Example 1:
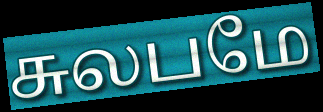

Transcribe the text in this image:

சுலபமே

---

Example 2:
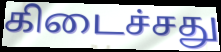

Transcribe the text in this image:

கிடைச்சது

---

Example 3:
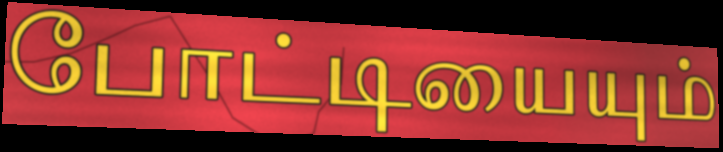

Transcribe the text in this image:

போட்டியையும்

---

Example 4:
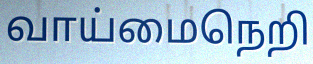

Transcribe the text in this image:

வாய்மைநெறி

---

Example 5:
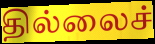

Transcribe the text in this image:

தில்லைச்